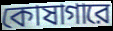
কোষাগারে